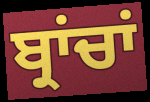
ਬ੍ਰਾਂਚਾਂ